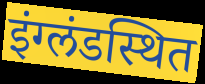
इंग्लंडस्थित